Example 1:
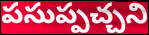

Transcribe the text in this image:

పసుప్పచ్చని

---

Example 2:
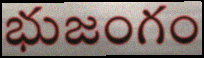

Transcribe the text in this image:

భుజంగం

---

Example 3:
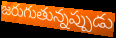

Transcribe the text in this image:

జరుగుతున్నప్పుడు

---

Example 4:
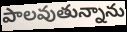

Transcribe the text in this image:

పాలవుతున్నాను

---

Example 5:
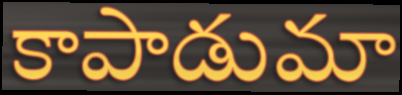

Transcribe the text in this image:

కాపాడుమా